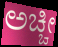
ಅಚ್ಚೀ